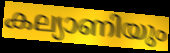
കല്യാണിയും